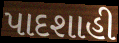
પાદશાહી